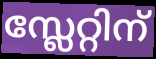
സ്ലേറ്റിന്